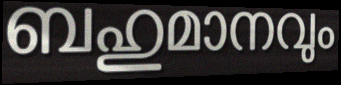
ബഹുമാനവും